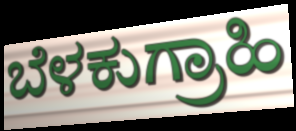
ಬೆಳಕುಗ್ರಾಹಿ